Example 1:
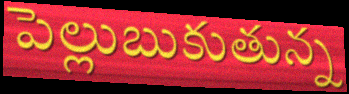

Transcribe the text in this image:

పెల్లుబుకుతున్న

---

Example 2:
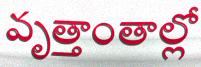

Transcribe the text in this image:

వృత్తాంతాల్లో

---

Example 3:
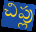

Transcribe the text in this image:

చిప్లు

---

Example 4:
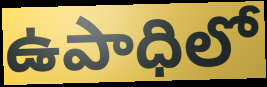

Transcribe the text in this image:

ఉపాధిలో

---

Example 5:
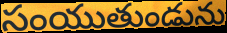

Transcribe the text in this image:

సంయుతుండును